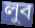
লুব